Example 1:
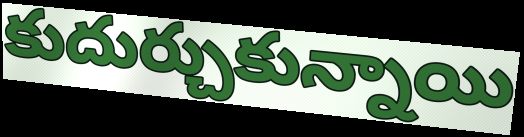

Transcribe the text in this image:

కుదుర్చుకున్నాయి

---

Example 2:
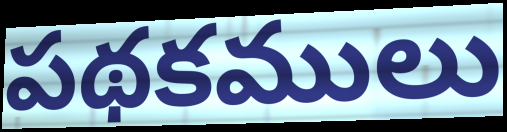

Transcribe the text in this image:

పథకములు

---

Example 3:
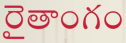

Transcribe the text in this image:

రైతాంగం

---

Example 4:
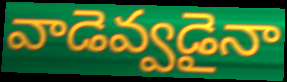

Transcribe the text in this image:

వాడెవ్వడైనా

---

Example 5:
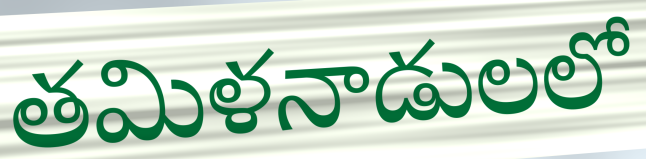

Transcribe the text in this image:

తమిళనాడులలో